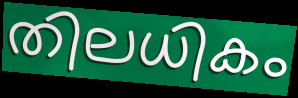
തിലധികം